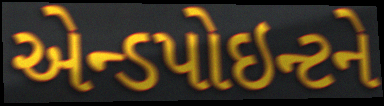
એન્ડપોઇન્ટને